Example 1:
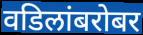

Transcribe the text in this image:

वडिलांबरोबर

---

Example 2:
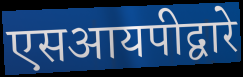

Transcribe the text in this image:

एसआयपीद्वारे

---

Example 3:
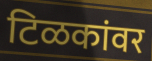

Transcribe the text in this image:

टिळकांवर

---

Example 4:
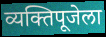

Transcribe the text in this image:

व्यक्तिपूजेला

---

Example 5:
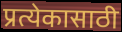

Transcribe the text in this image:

प्रत्येकासाठी